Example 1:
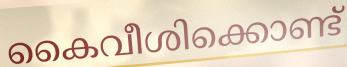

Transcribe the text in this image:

കൈവീശിക്കൊണ്ട്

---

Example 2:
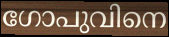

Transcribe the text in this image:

ഗോപുവിനെ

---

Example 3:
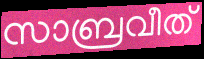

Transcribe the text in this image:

സാബ്രവീത്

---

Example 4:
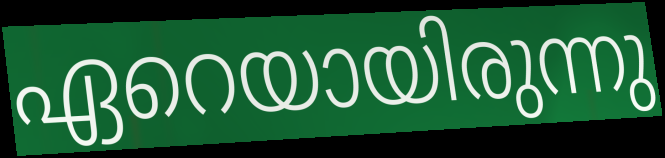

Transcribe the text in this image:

ഏറെയായിരുന്നു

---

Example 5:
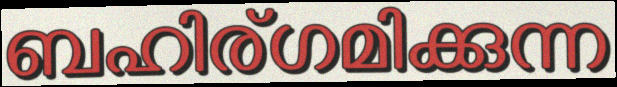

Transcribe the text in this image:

ബഹിര്ഗമിക്കുന്ന